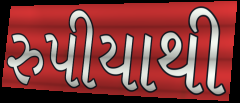
રુપીયાથી